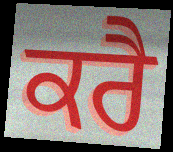
ਕਰੈ